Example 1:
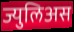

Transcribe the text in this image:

ज्युलिअस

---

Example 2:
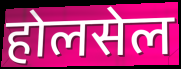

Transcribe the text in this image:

होलसेल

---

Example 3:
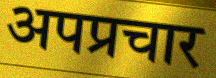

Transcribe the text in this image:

अपप्रचार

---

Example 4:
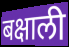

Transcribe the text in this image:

बक्षाली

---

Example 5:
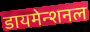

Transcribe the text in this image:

डायमेन्शनल